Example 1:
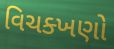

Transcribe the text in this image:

વિચક્ખણો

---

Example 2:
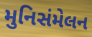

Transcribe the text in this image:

મુનિસંમેલન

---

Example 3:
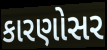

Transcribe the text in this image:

કારણોસર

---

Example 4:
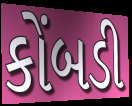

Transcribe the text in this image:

કોંબડી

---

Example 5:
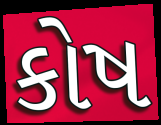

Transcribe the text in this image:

કોષ